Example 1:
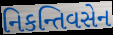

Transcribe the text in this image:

નિકન્તિવસેન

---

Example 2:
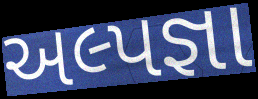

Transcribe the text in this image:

અલ્પજ્ઞા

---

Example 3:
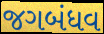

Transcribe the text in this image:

જગબંધવ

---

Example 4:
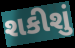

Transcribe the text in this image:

શકીશું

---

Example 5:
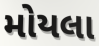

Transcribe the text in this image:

મોયલા